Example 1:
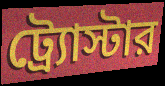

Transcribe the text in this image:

ট্র্যোস্টার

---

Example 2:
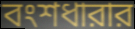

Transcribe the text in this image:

বংশধারার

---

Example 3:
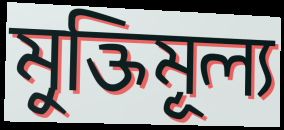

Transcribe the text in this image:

মুক্তিমূল্য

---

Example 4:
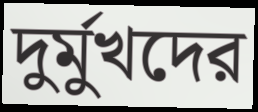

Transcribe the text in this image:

দুর্মুখদের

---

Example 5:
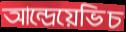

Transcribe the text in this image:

আন্দ্রেয়েভিচ